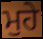
ਮੁਹੇ